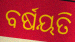
ବର୍ଷୟତି